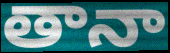
తానా